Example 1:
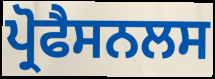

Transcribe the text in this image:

ਪ੍ਰੋਫੈਸਨਲਸ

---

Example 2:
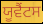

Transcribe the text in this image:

ਯੂਵੈਂਟਸ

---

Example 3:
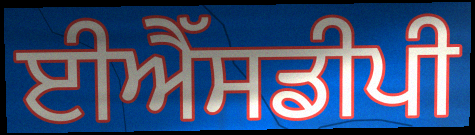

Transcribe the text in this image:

ਈਐੱਸਡੀਪੀ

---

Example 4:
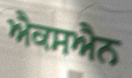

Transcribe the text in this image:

ਐਕਸਐਨ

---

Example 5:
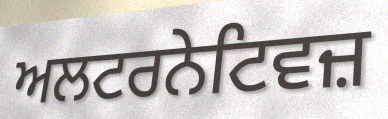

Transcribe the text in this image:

ਅਲਟਰਨੇਟਿਵਜ਼